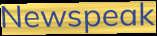
Newspeak